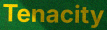
Tenacity